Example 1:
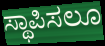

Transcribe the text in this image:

ಸ್ಥಾಪಿಸಲೂ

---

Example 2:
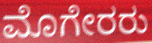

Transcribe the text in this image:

ಮೊಗೇರರು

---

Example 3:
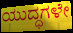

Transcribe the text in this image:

ಯುದ್ಧಗಳೇ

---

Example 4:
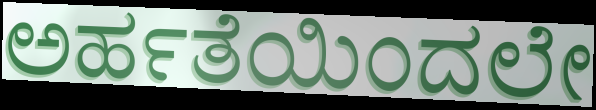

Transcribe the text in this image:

ಅರ್ಹತೆಯಿಂದಲೇ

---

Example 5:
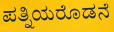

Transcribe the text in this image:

ಪತ್ನಿಯರೊಡನೆ